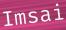
Imsai